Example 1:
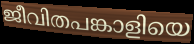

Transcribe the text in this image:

ജീവിതപങ്കാളിയെ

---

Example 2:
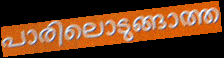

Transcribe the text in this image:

പാരിലൊടുങ്ങാത്ത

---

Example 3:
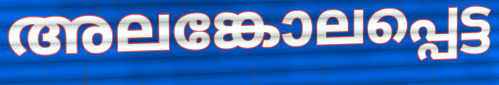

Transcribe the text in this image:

അലങ്കോലപ്പെട്ട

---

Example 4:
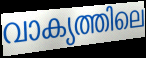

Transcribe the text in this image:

വാക്യത്തിലെ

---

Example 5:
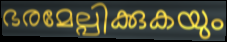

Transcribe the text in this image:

ഭരമേല്പിക്കുകയും